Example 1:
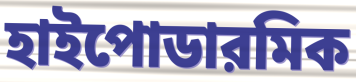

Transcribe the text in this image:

হাইপোডারমিক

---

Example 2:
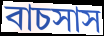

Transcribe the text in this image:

বাচসাস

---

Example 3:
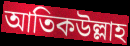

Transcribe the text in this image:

আতিকউল্লাহ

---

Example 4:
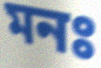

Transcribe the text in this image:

মনঃ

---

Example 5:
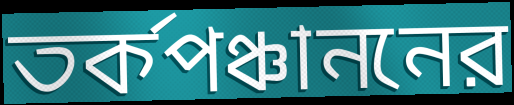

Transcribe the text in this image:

তর্কপঞ্চাননের